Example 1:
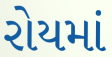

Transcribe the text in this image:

રોયમાં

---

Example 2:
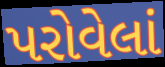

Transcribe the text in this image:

પરોવેલાં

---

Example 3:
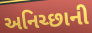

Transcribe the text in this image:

અનિચ્છાની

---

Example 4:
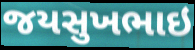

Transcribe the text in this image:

જયસુખભાઇ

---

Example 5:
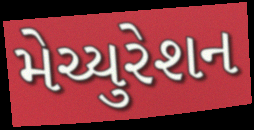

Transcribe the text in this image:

મેચ્યુરેશન